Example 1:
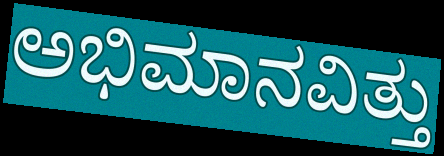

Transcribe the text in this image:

ಅಭಿಮಾನವಿತ್ತು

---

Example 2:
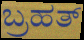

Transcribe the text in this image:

ಬ್ರಹತ್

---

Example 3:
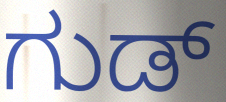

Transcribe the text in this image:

ಗುಡ್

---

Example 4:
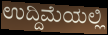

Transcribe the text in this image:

ಉದ್ದಿಮೆಯಲ್ಲಿ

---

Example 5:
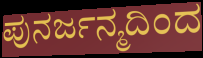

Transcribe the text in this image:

ಪುನರ್ಜನ್ಮದಿಂದ